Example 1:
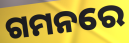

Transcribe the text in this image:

ଗମନରେ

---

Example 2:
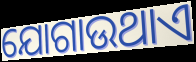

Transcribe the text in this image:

ଯୋଗାଉଥାଏ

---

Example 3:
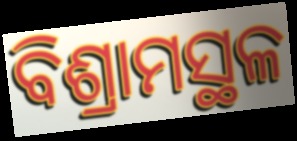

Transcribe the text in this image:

ବିଶ୍ରାମସ୍ଥଳ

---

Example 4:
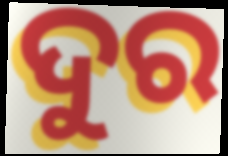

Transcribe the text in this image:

ଦୁର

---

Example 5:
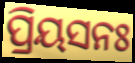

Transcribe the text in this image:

ପ୍ରିୟସନଃ